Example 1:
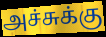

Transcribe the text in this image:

அச்சுக்கு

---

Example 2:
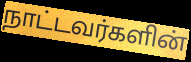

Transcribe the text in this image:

நாட்டவர்களின்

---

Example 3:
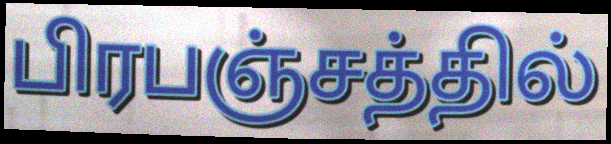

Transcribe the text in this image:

பிரபஞ்சத்தில்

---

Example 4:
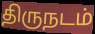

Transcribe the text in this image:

திருநடம்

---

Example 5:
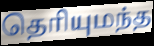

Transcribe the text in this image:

தெரியுமந்த